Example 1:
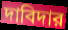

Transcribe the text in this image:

দাবিদার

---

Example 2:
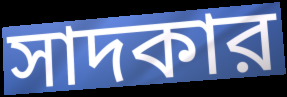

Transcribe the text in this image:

সাদকার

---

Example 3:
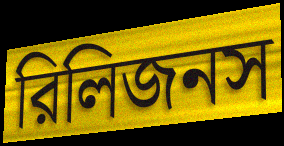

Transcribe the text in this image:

রিলিজনস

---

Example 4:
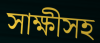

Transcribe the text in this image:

সাক্ষীসহ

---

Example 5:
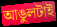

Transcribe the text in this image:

আঙুলটাই